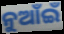
ନୁଆଁଇଁ